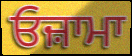
ਓਜ਼ਾਮਾ